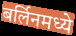
बर्लिनमध्ये